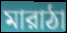
মারাঠা